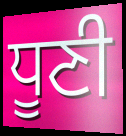
ਧੂਣੀ